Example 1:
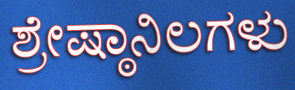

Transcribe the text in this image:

ಶ್ರೇಷ್ಠಾನಿಲಗಳು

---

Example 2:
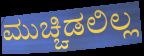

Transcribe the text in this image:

ಮುಚ್ಚಿಡಲಿಲ್ಲ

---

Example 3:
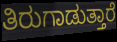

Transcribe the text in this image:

ತಿರುಗಾಡುತ್ತಾರೆ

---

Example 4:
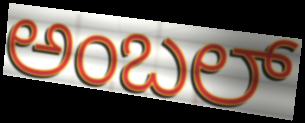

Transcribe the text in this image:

ಅಂಬಲ್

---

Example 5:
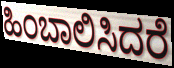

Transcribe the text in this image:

ಹಿಂಬಾಲಿಸಿದರೆ